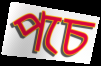
পচে